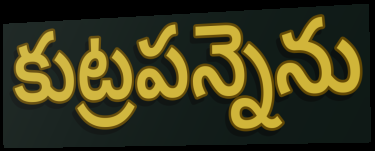
కుట్రపన్నెను